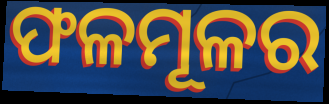
ଫଳମୂଳର